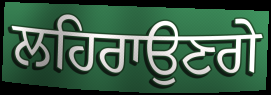
ਲਹਿਰਾਉਣਗੇ